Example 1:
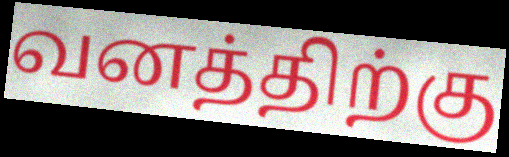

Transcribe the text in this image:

வனத்திற்கு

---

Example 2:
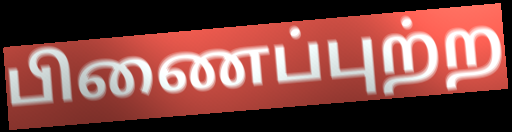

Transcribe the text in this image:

பிணைப்புற்ற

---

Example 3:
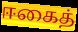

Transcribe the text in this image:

ஈகைத்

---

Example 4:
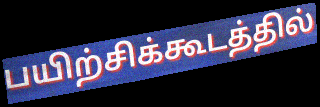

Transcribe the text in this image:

பயிற்சிக்கூடத்தில்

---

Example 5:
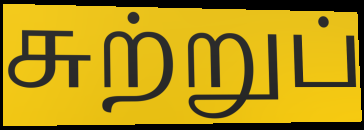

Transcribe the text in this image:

சுற்றுப்